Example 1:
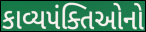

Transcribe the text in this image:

કાવ્યપંક્તિઓનો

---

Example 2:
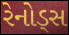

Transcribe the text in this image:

રેનોડ્સ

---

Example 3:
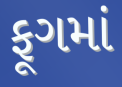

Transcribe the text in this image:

ફૂગમાં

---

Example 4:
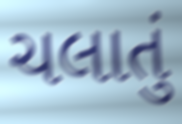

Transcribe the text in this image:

ચલાતું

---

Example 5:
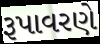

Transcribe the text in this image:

રૂપાવરણે